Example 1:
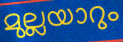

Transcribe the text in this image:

മുല്ലയാറും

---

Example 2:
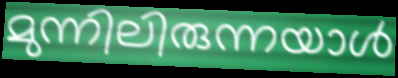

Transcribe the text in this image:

മുന്നിലിരുന്നയാൾ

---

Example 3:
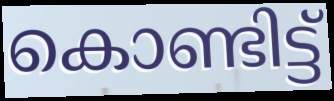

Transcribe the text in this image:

കൊണ്ടിട്ട്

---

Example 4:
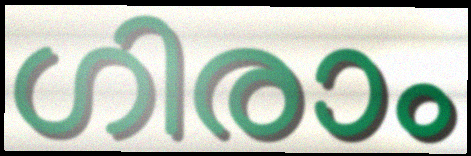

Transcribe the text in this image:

ഗിരാം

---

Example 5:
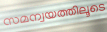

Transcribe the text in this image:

സമന്വയത്തിലൂടെ